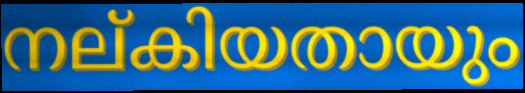
നല്കിയതായും